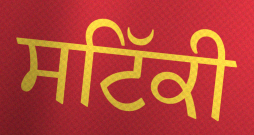
ਸਟਿੱਕੀ